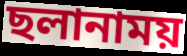
ছলানাময়